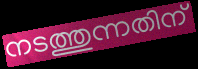
നടത്തുന്നതിന്